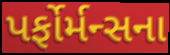
પર્ફોર્મન્સના